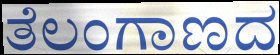
ತೆಲಂಗಾಣದ